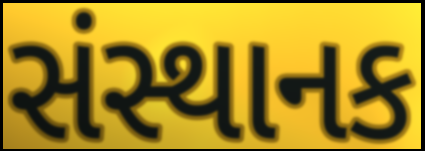
સંસ્થાનક